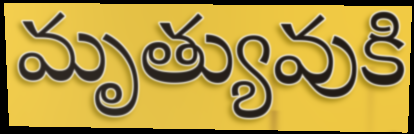
మృత్యువుకి